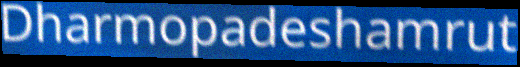
Dharmopadeshamrut